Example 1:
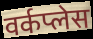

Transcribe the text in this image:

वर्कप्लेस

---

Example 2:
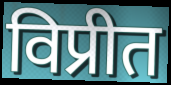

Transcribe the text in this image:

विप्रीत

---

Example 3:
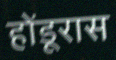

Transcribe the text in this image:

होंडूरास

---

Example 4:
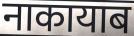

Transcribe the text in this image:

नाकायाब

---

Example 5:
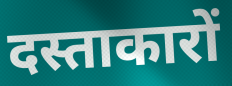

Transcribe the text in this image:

दस्ताकारों